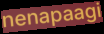
nenapaagi